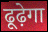
ढूढ़ेगा